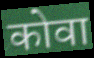
कोवा